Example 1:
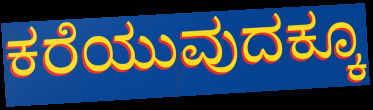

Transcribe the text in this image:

ಕರೆಯುವುದಕ್ಕೂ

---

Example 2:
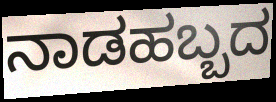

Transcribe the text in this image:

ನಾಡಹಬ್ಬದ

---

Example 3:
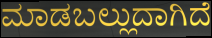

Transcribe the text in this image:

ಮಾಡಬಲ್ಲುದಾಗಿದೆ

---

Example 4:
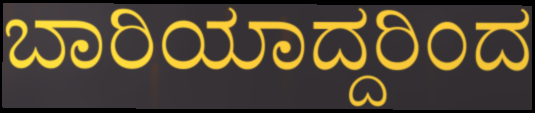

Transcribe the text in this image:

ಬಾರಿಯಾದ್ದರಿಂದ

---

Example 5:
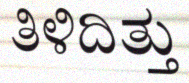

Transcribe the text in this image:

ತಿಳಿದಿತ್ತು